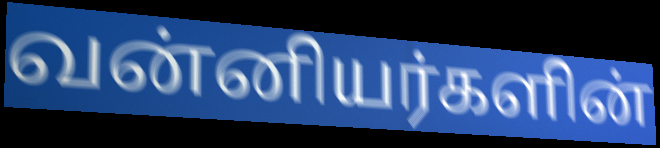
வன்னியர்களின்